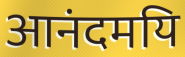
आनंदमयि